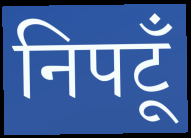
निपटूँ